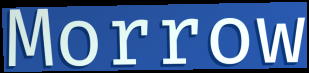
Morrow